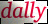
dally